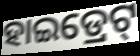
ହାଇଡ୍ରେଟ୍